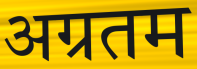
अग्रतम